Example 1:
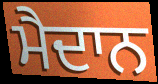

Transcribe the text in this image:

ਮੈਦਾਨ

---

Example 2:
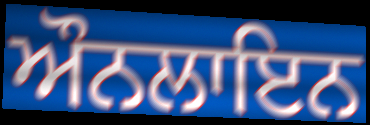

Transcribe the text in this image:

ਔਨਲਾਇਨ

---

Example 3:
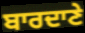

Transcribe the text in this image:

ਬਾਰਦਾਣੇ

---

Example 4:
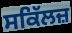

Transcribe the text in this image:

ਸਕਿੱਲਜ਼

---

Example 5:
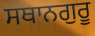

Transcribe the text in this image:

ਸਥਾਨਗੁਰੂ